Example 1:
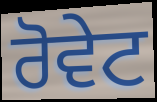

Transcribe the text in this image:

ਰੋਵੇਟ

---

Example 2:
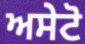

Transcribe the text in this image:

ਅਸੇਟੋ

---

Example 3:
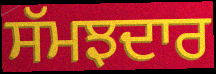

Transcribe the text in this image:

ਸੱਮਝਦਾਰ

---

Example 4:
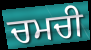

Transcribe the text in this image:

ਚਮਚੀ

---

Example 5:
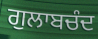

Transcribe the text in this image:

ਗੁਲਾਬਚੰਦ